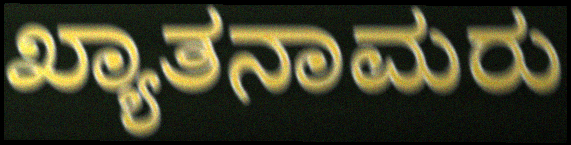
ಖ್ಯಾತನಾಮರು